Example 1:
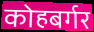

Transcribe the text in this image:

कोहबर्गर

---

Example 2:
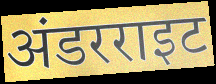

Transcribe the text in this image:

अंडरराइट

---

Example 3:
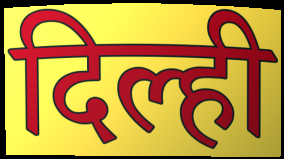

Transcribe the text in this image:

दिल्ही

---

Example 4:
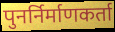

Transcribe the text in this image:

पुनर्निर्माणकर्ता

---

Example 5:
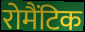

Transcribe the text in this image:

रोमैंटिक